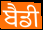
ਬੈਡੀ